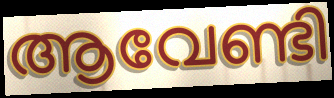
ആവേണ്ടി